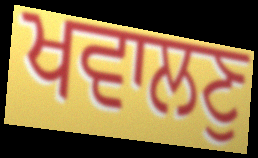
ਖਵਾਲਣੁ